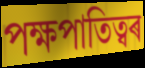
পক্ষপাতিত্বৰ